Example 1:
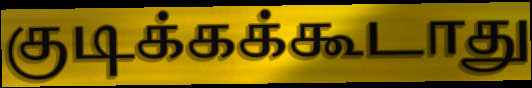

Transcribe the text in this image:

குடிக்கக்கூடாது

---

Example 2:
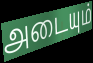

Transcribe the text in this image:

அடையும்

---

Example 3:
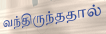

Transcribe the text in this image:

வந்திருந்ததால்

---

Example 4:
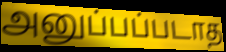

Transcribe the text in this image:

அனுப்பப்படாத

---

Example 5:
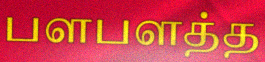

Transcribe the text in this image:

பளபளத்த